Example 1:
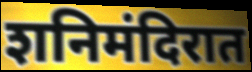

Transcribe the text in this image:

शनिमंदिरात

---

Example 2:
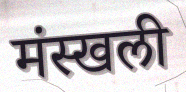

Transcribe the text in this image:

मंस्खली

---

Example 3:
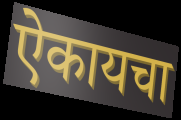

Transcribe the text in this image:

ऐकायचा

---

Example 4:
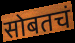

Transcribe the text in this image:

सोबतचं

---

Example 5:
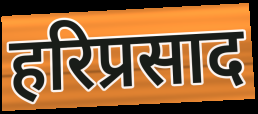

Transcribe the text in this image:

हरिप्रसाद